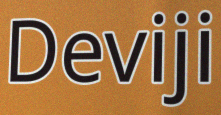
Deviji